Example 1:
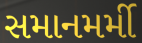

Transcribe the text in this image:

સમાનમર્મી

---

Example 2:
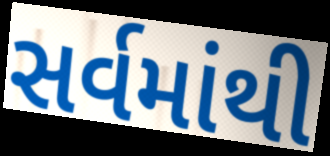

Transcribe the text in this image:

સર્વમાંથી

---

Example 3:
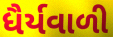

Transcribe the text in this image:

ધૈર્યવાળી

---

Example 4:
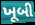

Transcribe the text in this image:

ખૂબી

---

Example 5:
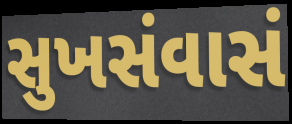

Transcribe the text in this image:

સુખસંવાસં